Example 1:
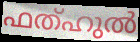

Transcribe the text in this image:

ഫത്ഹുൽ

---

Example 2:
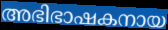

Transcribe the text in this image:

അഭിഭാഷകനായ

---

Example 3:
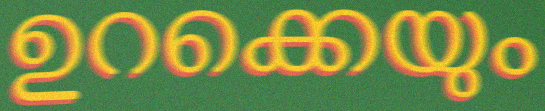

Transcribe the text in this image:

ഉറക്കെയും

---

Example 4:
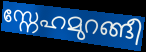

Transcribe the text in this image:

സ്നേഹമുറങ്ങീ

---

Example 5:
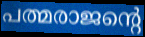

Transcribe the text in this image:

പത്മരാജന്റെ